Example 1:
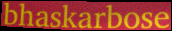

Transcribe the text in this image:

bhaskarbose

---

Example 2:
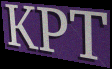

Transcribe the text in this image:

KPT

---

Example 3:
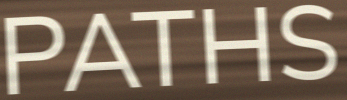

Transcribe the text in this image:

PATHS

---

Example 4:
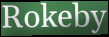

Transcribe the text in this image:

Rokeby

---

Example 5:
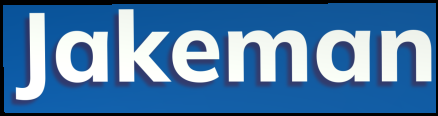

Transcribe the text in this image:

Jakeman